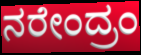
ನರೇಂದ್ರಂ